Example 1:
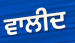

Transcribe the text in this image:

ਵਾਲੀਦ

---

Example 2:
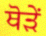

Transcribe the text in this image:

ਥੋੜੇਂ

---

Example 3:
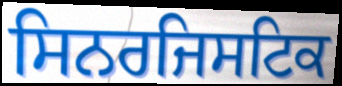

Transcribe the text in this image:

ਸਿਨਰਜਿਸਟਿਕ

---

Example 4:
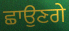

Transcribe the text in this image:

ਛਾਉਣਗੇ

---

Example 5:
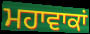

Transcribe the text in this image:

ਮਹਾਵਾਕਾਂ